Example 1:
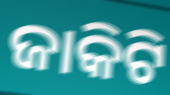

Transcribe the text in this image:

ଜାକିଟି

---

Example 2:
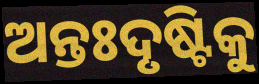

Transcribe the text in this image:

ଅନ୍ତଃଦୃଷ୍ଟିକୁ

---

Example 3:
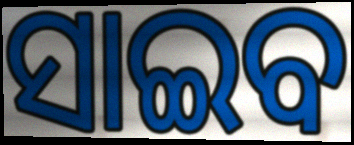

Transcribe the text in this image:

ସାଇବ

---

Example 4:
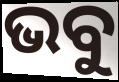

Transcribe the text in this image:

ଭବୁ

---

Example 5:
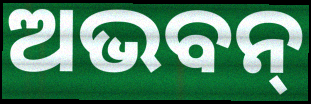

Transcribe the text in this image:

ଅଭବନ୍